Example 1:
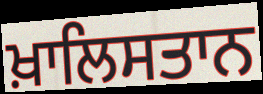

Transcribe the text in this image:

ਖ਼ਾਲਿਸਤਾਨ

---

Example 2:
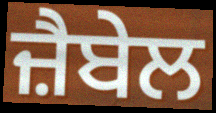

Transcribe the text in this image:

ਜ਼ੈਬੇਲ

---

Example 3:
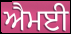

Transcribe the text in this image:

ਐਮਈ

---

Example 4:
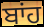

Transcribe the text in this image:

ਬਾਂਹ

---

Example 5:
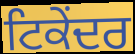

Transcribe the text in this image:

ਟਿਕੇਂਦਰ